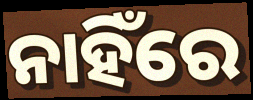
ନାହିଁରେ